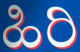
ಹಿರಿ